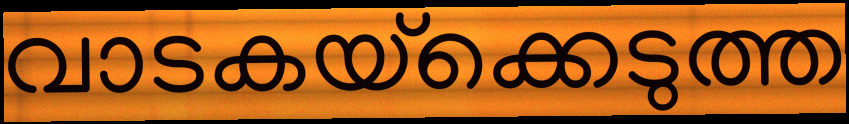
വാടകയ്‌ക്കെടുത്ത